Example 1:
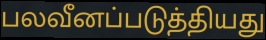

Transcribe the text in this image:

பலவீனப்படுத்தியது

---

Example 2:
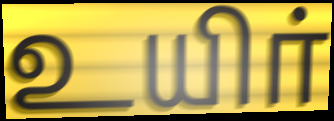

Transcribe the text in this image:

உயிர்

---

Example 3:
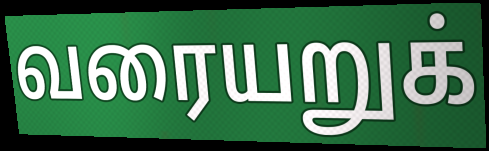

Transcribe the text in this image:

வரையறுக்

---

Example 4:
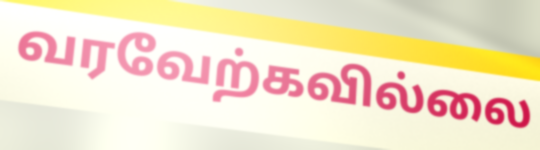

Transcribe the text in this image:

வரவேற்கவில்லை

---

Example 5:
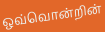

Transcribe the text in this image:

ஒவ்வொன்றின்